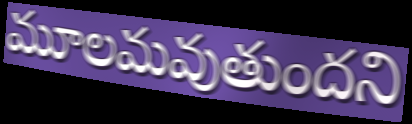
మూలమవుతుందని